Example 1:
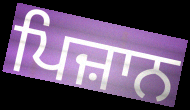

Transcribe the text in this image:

ਪਿਜ਼ਾਨ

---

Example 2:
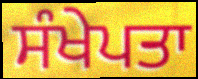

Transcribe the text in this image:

ਸੰਖੇਪਤਾ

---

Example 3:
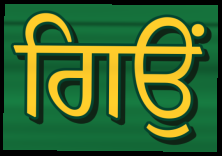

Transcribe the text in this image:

ਗਿਉਂ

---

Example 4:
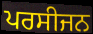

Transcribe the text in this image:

ਪਰਸੀਜਨ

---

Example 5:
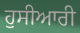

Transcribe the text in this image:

ਹੁਸੀਆਰੀ